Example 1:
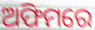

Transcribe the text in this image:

ଅଫିମରେ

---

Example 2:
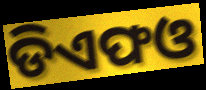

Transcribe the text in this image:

ଡିଏଫଓ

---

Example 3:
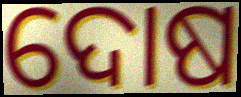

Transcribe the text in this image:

ଦୋଷ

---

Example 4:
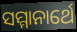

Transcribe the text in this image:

ସମ୍ମାନାର୍ଥେ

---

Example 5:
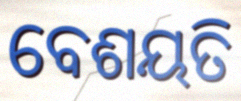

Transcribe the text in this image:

ବେଶୟତି